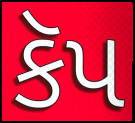
કૅપ